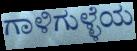
ಗಾಳಿಗುಳ್ಳೆಯ